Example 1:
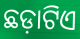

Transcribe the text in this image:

ଛଡ଼ାଟିଏ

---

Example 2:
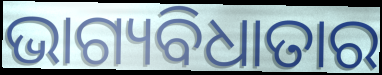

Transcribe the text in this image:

ଭାଗ୍ୟବିଧାତାର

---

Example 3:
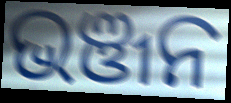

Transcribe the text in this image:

ଭଞ୍ଜନ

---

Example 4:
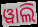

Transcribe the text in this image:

ୱାଲି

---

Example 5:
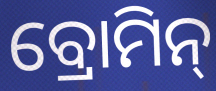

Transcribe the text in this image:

ବ୍ରୋମିନ୍